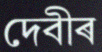
দেবীৰ